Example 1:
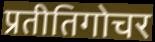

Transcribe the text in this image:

प्रतीतिगोचर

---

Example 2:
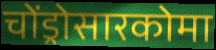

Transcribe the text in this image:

चोंड्रोसारकोमा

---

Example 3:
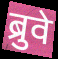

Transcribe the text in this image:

ब्रुवे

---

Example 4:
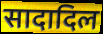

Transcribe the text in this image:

सादादिल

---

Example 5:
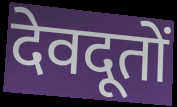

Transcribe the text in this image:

देवदूतों